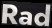
Rad